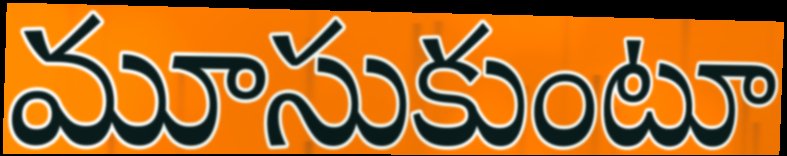
మూసుకుంటూ